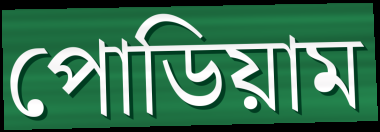
পোডিয়াম